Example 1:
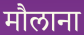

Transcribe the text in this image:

मौलाना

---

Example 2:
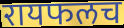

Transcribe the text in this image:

रायफलच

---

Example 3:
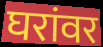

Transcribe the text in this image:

घरांवर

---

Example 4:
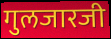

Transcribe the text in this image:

गुलजारजी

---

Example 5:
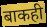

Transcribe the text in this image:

बाकही